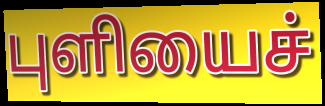
புளியைச்